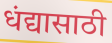
धंद्यासाठी